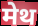
मेथ